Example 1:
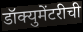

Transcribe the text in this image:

डॉक्युमेंटरीची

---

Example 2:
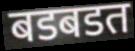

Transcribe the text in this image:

बडबडत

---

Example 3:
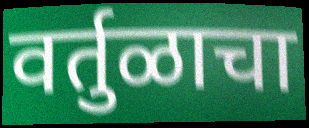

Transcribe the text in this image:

वर्तुळाचा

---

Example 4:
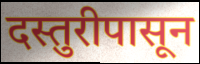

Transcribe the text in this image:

दस्तुरीपासून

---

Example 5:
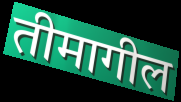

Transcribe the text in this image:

तीमागील